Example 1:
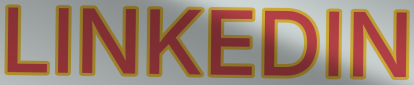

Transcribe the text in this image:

LINKEDIN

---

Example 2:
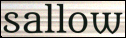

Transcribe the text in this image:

sallow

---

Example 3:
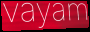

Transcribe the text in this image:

vayam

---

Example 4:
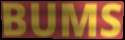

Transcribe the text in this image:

BUMS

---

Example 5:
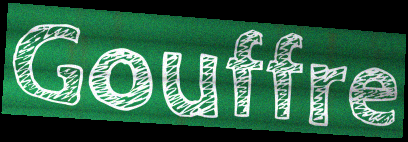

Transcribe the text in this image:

Gouffre